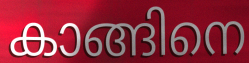
കാങ്ങിനെ